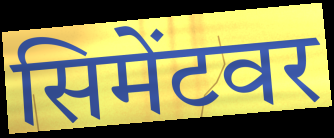
सिमेंटवर